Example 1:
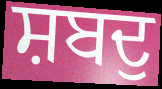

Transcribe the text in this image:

ਸ਼ਬਦੁ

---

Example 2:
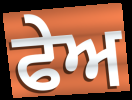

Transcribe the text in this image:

ਫੇਅ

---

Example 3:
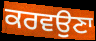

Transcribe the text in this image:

ਕਰਵਉਣਾ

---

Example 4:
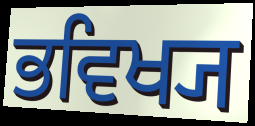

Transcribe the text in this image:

ਭਵਿਖ੍ਯ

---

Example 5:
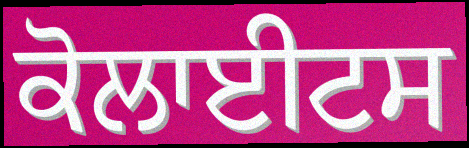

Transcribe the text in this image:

ਕੋਲਾਈਟਸ